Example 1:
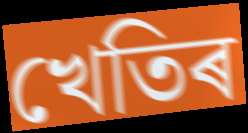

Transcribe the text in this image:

খেতিৰ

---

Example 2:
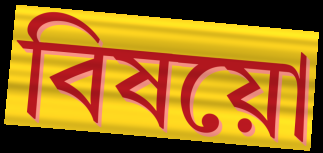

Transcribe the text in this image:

বিষয়ো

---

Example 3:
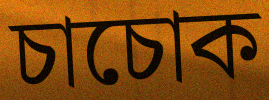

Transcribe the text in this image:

চাচোক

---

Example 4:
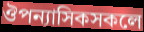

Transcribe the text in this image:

ঔপন্যাসিকসকলে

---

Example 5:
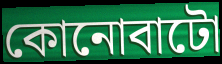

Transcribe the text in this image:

কোনোবাটো